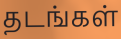
தடங்கள்